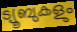
ട്യൂബുകളും